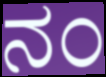
ನಂ